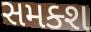
સમક્શ